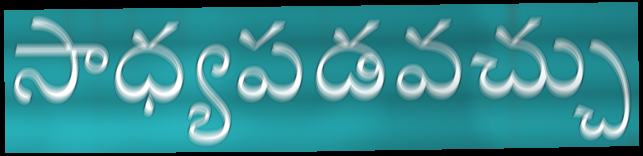
సాధ్యపడవచ్చు